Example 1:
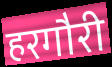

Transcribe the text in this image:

हरगौरी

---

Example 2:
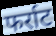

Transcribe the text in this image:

फर्राट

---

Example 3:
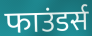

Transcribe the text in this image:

फाउंडर्स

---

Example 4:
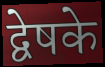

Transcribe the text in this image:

द्वेषके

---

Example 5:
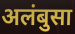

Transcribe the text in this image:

अलंबुसा